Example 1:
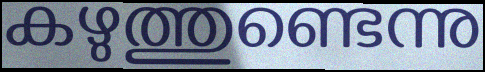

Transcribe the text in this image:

കഴുത്തുണ്ടെന്നു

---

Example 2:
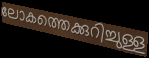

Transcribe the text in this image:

ലോകത്തെക്കുറിച്ചുള്ള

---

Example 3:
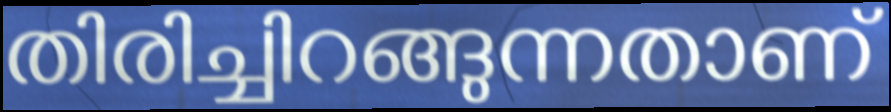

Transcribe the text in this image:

തിരിച്ചിറങ്ങുന്നതാണ്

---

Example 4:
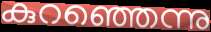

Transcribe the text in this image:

കുറഞ്ഞെന്നു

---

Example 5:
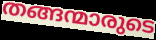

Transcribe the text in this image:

തങ്ങന്മാരുടെ